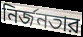
নির্জনতার